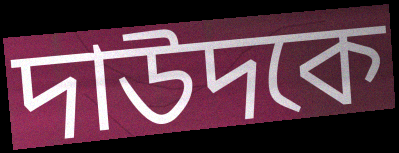
দাউদকে